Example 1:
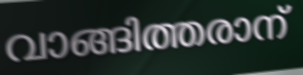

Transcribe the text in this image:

വാങ്ങിത്തരാന്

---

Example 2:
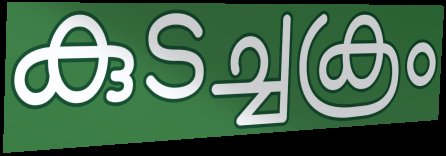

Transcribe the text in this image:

കുടച്ചക്രം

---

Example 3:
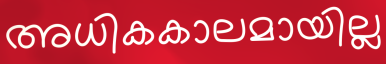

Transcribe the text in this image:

അധികകാലമായില്ല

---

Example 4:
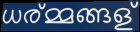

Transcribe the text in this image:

ധര്മ്മങ്ങള്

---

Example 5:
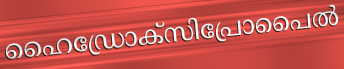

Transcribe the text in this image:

ഹൈഡ്രോക്സിപ്രോപൈൽ